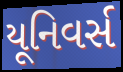
યૂનિવર્સ